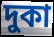
দুকা